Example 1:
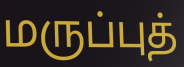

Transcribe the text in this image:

மருப்புத்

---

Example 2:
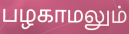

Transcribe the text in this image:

பழகாமலும்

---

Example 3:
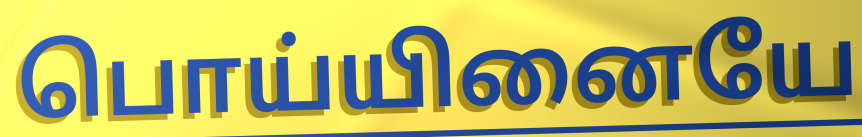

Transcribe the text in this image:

பொய்யினையே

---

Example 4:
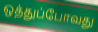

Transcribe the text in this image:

ஒத்துப்போவது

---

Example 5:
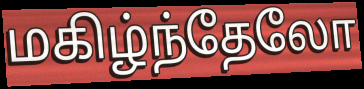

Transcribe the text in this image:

மகிழ்ந்தேலோ